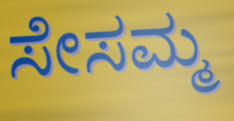
ಸೇಸಮ್ಮ